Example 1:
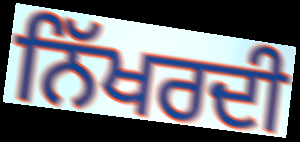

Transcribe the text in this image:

ਨਿੱਖਰਦੀ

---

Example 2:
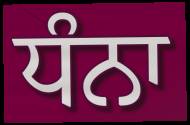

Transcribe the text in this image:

ਧੰਨਾ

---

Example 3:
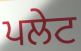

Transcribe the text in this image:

ਪਲੇਟ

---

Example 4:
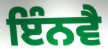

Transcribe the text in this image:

ਇੰਨਵੈ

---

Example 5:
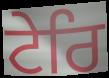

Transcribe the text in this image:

ਟੇਰਿ